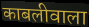
काबलीवाला